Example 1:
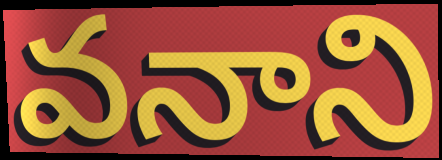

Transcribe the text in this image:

వనాని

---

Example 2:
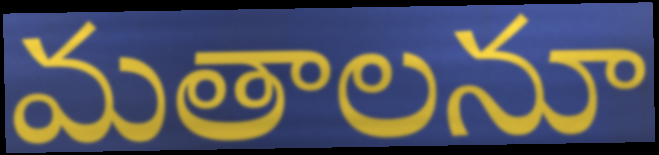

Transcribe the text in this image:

మతాలనూ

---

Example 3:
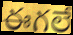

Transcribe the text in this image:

ఈగలే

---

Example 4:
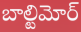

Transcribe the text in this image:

బాల్టిమోర్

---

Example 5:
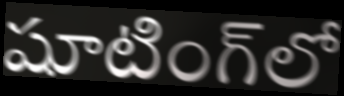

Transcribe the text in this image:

షూటింగ్‌లో